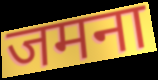
जमना